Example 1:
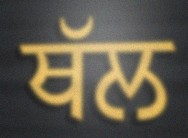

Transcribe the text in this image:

ਥੱਲ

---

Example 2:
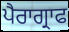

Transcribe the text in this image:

ਪੈਰਾਗ੍ਰਾਫ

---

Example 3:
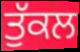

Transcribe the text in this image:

ਤੁੱਕਲ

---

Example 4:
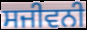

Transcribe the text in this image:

ਸਜੀਵਨੀ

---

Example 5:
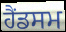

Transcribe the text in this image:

ਹੈਂਡਸਮ